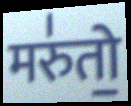
मरु॑तो॒